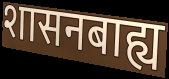
शासनबाह्य